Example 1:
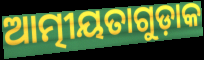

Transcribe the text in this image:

ଆତ୍ମୀୟତାଗୁଡ଼ାକ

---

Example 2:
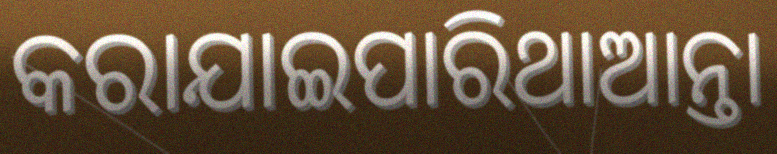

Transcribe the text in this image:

କରାଯାଇପାରିଥାଆନ୍ତା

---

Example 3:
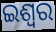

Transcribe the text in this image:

ଇଶ୍ଵର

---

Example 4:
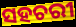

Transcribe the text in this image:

ସହଚରୀ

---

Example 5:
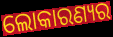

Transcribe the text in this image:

ଲୋକାରଣ୍ୟର